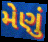
મેણું